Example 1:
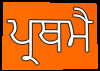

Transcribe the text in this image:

ਪ੍ਰਥਮੈ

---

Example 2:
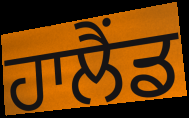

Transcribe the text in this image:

ਹਾਲੈਂਡ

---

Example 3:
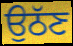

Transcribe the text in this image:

ਉਠੱਣ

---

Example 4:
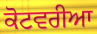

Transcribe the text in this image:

ਕੋਟਵਰੀਆ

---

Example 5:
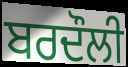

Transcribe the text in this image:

ਬਰਦੌਲੀ